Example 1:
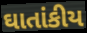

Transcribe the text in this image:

ઘાતાંકીય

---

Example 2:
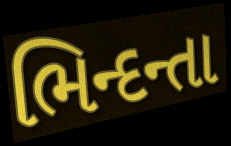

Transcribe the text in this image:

ભિન્દન્તા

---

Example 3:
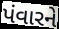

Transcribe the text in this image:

પંવારને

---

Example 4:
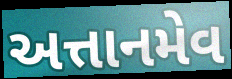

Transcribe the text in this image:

અત્તાનમેવ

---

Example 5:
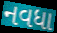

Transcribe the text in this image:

નવધા